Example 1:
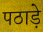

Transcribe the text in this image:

पठाड़े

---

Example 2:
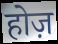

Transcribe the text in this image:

होज़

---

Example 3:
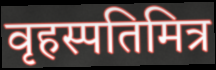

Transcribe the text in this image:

वृहस्पतिमित्र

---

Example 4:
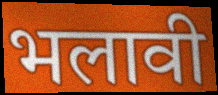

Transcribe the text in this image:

भलावी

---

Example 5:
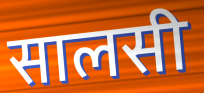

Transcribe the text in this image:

सालसी